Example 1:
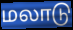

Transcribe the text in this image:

மலாடு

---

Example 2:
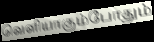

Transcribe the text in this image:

வெளியாகும்போதும்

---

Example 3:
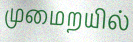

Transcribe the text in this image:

முமைறயில்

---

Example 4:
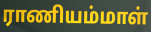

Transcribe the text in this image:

ராணியம்மாள்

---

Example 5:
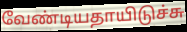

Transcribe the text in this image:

வேண்டியதாயிடுச்சு